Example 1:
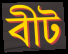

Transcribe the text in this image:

বীট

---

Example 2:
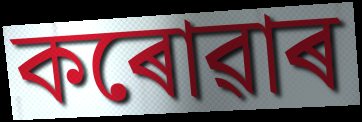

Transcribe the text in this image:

কৰোৱাৰ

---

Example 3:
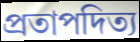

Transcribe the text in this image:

প্ৰতাপদিত্য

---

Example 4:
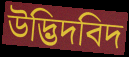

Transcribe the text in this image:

উদ্ভিদবিদ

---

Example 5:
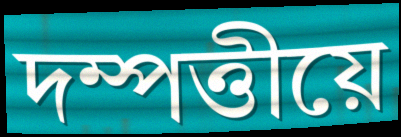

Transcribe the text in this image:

দম্পত্তীয়ে